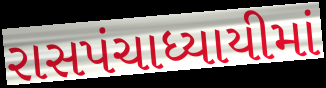
રાસપંચાધ્યાયીમાં